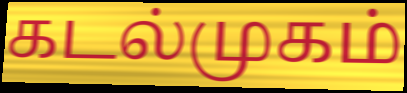
கடல்முகம்